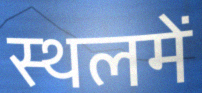
स्थलमें